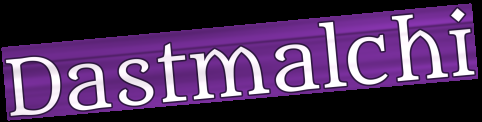
Dastmalchi